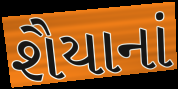
શૈયાનાં